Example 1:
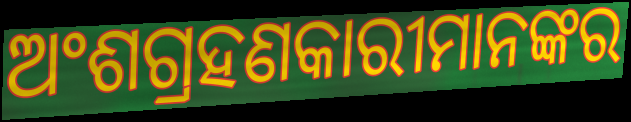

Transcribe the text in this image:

ଅଂଶଗ୍ରହଣକାରୀମାନଙ୍କର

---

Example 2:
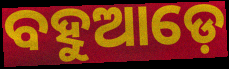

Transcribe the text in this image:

ବହୁଆଡ଼େ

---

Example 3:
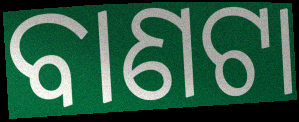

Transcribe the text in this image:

ବାଣଟା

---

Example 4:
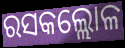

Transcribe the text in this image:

ରସକଲ୍ଲୋଳ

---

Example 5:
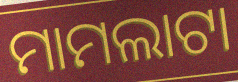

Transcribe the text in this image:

ମାମଲାଟା